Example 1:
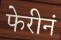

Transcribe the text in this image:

फेरीनं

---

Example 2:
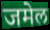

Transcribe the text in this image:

जमेल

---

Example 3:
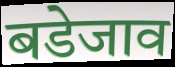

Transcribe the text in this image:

बडेजाव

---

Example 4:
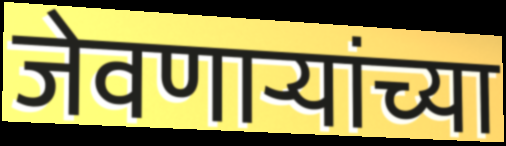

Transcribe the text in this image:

जेवणाऱ्यांच्या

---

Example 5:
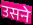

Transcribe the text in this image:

उसने